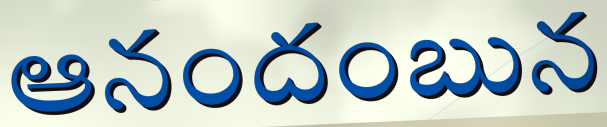
ఆనందంబున